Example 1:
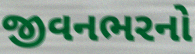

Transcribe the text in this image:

જીવનભરનો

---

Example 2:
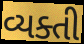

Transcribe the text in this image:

વ્યક્તી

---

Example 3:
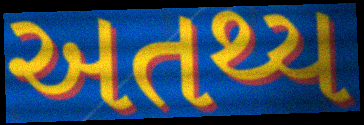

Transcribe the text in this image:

અતથ્ય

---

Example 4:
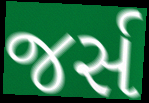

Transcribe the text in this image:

જર્સ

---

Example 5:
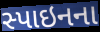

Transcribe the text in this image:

સ્પાઇનના